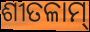
ଶୀତଳାମ୍